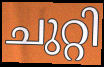
ചുറ്റി